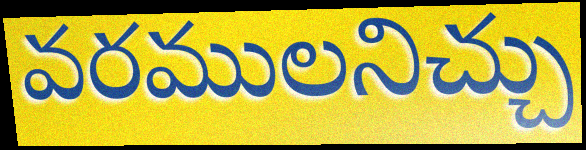
వరములనిచ్చు